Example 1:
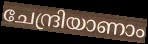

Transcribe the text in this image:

ചേന്ദ്രിയാണാം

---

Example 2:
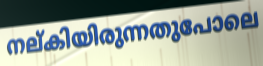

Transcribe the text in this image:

നല്കിയിരുന്നതുപോലെ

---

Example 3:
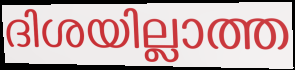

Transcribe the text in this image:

ദിശയില്ലാത്ത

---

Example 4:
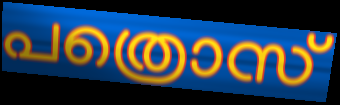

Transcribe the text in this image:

പത്രൊസ്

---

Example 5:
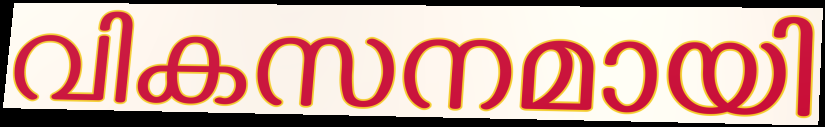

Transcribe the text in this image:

വികസനമായി